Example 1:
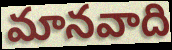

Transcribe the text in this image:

మానవాది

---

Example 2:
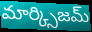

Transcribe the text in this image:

మార్క్సిజమ్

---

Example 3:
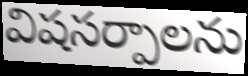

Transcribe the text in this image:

విషసర్పాలను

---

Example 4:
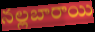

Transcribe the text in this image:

నల్లబారాయి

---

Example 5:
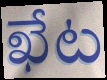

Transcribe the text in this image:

ఖేట